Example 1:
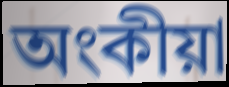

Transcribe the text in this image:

অংকীয়া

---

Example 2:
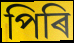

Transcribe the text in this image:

পিৰি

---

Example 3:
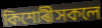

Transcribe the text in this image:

কিশোৰীসকলে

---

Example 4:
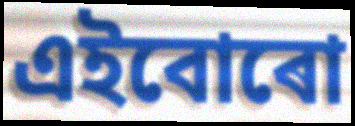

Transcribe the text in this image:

এইবোৰো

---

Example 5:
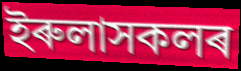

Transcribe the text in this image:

ইৰুলাসকলৰ